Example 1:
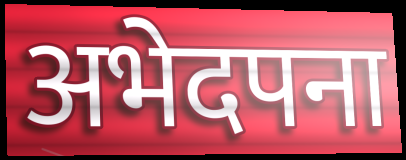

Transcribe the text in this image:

अभेदपना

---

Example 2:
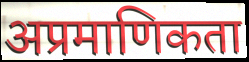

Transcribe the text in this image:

अप्रमाणिकता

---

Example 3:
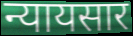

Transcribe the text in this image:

न्यायसार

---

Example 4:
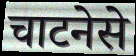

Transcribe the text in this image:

चाटनेसे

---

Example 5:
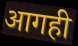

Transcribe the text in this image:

आगही